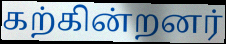
கற்கின்றனர்